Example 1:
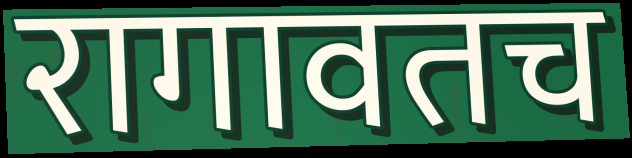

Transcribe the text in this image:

रागावतच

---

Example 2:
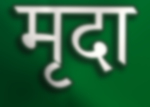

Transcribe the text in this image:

मृदा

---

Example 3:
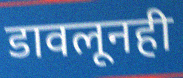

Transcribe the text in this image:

डावलूनही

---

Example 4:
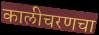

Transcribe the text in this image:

कालीचरणचा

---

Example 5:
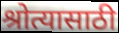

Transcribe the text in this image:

श्रोत्यासाठी